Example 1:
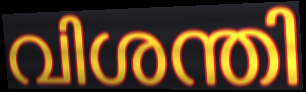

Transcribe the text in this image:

വിശന്തി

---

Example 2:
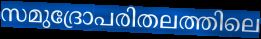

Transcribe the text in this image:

സമുദ്രോപരിതലത്തിലെ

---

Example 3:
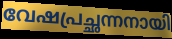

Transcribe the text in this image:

വേഷപ്രച്ഛന്നനായി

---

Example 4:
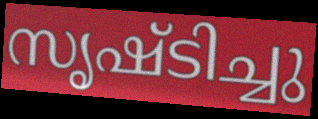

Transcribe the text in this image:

സൃഷ്ടിച്ചു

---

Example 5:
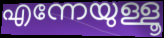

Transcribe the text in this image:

എന്നേയുള്ളൂ